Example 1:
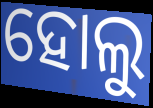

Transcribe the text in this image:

ହୋଲୁ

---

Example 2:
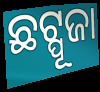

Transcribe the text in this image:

ଛଟ୍ପୂଜା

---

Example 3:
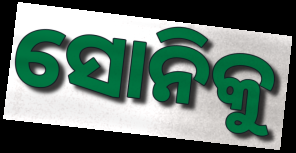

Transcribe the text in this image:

ସୋନିକୁ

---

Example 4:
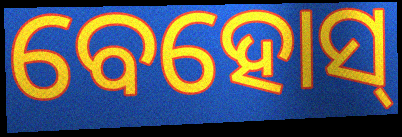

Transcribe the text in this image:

ବେହୋସ୍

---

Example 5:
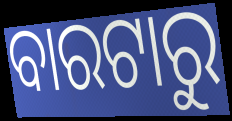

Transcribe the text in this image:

ବାରଟାରୁ